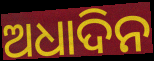
ଅଧାଦିନ